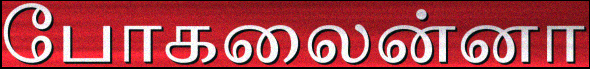
போகலைன்னா